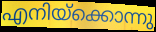
എനിയ്ക്കൊന്നു